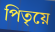
পিতৃয়ে